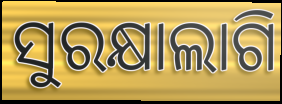
ସୁରକ୍ଷାଲାଗି